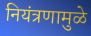
नियंत्रणामुळे